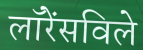
लॉरेंसविले